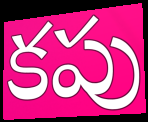
కపు